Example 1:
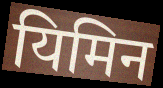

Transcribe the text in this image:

यिमिन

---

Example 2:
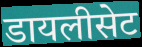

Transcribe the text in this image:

डायलीसेट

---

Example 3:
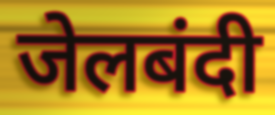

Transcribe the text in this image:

जेलबंदी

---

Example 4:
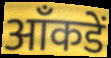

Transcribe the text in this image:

आँकडें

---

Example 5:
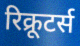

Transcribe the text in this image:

रिक्रूटर्स